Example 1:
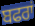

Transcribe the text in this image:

ਬਫਰਾਂ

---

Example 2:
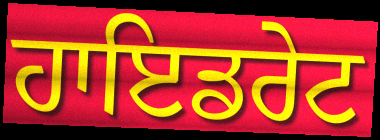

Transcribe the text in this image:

ਹਾਇਡਰੇਟ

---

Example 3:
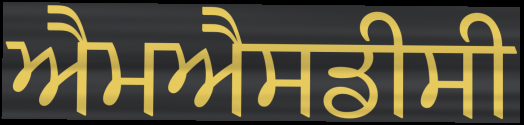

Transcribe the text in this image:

ਐਮਐਸਡੀਸੀ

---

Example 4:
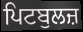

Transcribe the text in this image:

ਪਿਟਬੁਲਜ਼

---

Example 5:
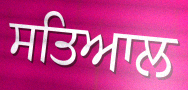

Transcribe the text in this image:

ਸਤਿਆਲ